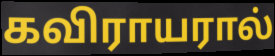
கவிராயரால்